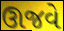
ઊજવે